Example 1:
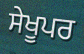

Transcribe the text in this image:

ਸੇਖੂਪਰ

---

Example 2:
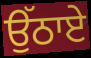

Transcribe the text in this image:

ਉੱਠਾਏ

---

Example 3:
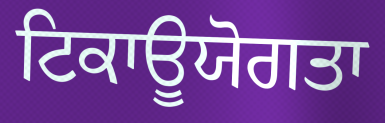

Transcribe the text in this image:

ਟਿਕਾਊਯੋਗਤਾ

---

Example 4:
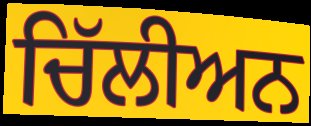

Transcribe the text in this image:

ਚਿੱਲੀਅਨ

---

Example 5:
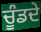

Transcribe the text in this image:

ਚੂੰਡਦੇ